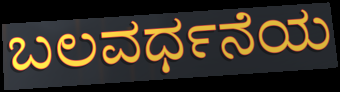
ಬಲವರ್ಧನೆಯ